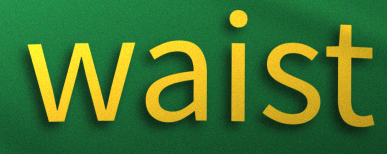
waist